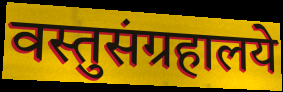
वस्तुसंग्रहालये